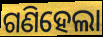
ଗଣିହେଲା